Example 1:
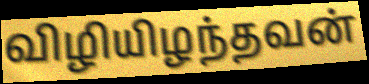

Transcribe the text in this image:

விழியிழந்தவன்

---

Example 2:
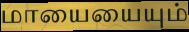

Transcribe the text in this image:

மாயையையும்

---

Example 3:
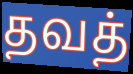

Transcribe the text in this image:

தவத்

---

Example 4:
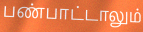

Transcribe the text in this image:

பண்பாட்டாலும்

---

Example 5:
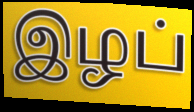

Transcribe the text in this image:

இழப்